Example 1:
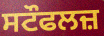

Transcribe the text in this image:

ਸਟੌਫਲਜ਼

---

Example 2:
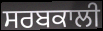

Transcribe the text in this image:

ਸਰਬਕਾਲੀ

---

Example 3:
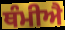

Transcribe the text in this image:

ਥੰਮੀਐ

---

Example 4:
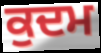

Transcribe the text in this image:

ਕੁਦਮ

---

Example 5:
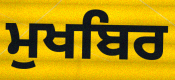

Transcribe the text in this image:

ਮੁਖਬਿਰ